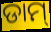
ଡାମ୍